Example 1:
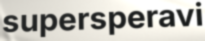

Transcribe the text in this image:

supersperavi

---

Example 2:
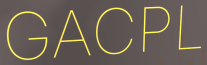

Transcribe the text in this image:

GACPL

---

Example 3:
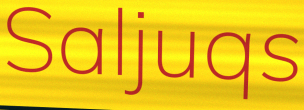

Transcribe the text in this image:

Saljuqs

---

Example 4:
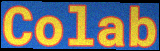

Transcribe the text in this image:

Colab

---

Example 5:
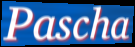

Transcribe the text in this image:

Pascha